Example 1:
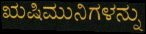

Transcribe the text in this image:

ಋಷಿಮುನಿಗಳನ್ನು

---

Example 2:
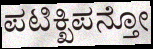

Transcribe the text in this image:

ಪಟಿಕ್ಖಿಪನ್ತೋ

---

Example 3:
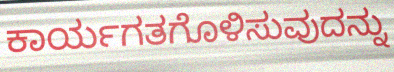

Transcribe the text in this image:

ಕಾರ್ಯಗತಗೊಳಿಸುವುದನ್ನು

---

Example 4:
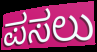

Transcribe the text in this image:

ಪಸಲು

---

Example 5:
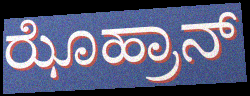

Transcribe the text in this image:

ಝೊಹ್ರಾನ್